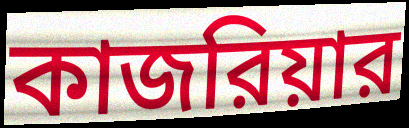
কাজরিয়ার